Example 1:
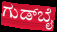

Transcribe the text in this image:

ಗುಡ್‌ಬೈ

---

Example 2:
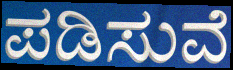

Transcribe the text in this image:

ಪಡಿಸುವೆ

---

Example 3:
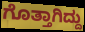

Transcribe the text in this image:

ಗೊತ್ತಾಗಿದ್ದು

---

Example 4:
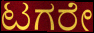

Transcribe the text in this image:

ಟಗರೇ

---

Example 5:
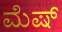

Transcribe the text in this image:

ಮೆಷ್